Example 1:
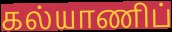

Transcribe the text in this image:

கல்யாணிப்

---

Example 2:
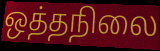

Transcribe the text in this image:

ஒத்தநிலை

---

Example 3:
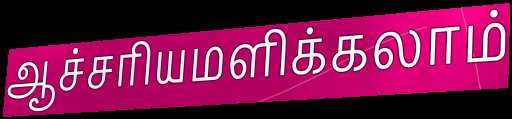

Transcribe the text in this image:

ஆச்சரியமளிக்கலாம்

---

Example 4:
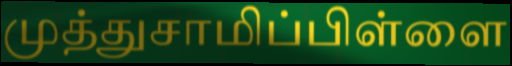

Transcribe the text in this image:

முத்துசாமிப்பிள்ளை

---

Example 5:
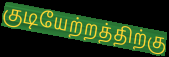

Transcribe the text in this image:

குடியேற்றத்திற்கு